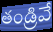
తండ్రివే